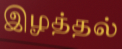
இழத்தல்